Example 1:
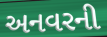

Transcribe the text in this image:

અનવરની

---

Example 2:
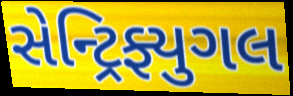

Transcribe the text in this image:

સેન્ટ્રિફ્યુગલ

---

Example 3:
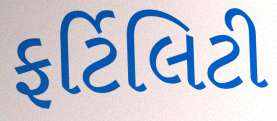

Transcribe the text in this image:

ફર્ટિલિટી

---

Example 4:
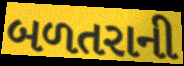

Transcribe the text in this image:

બળતરાની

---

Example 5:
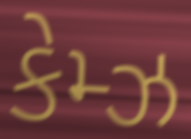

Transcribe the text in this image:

કેમ્ઝ